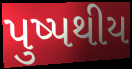
પુષ્પથીય